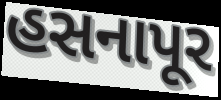
હસનાપૂર